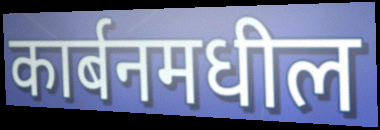
कार्बनमधील